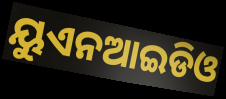
ୟୁଏନଆଇଡିଓ